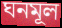
ঘনমূল